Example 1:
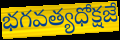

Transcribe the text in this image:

భగవత్యధోక్షజే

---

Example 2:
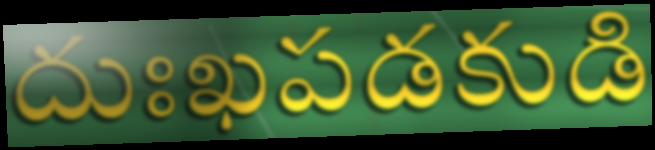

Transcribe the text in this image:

దుఃఖపడకుడి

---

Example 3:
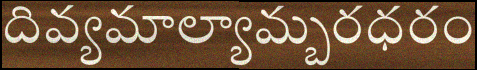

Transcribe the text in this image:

దివ్యమాల్యామ్బరధరం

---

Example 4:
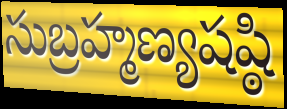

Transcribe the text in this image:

సుబ్రహ్మణ్యషష్ఠి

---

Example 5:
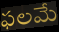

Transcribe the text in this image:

ఫలమే